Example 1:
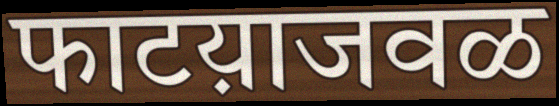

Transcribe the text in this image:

फाटय़ाजवळ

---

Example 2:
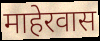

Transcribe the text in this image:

माहेरवास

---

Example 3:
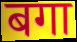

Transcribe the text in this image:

बगा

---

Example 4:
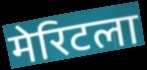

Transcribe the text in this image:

मेरिटला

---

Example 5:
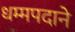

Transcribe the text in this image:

धम्मपदाने